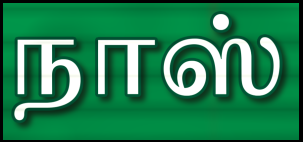
நாஸ்